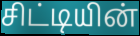
சிட்டியின்